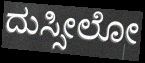
ದುಸ್ಸೀಲೋ